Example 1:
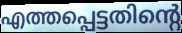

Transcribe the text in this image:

എത്തപ്പെട്ടതിന്റെ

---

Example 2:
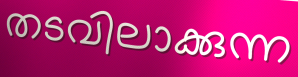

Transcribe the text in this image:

തടവിലാക്കുന്ന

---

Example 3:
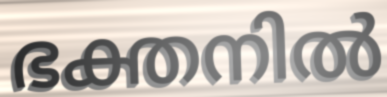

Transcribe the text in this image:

ഭക്തനിൽ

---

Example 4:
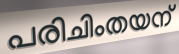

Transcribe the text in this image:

പരിചിംതയന്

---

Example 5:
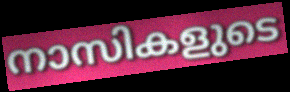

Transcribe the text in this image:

നാസികളുടെ